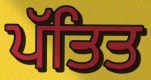
ਪੱਤਿਤ